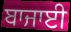
ਬਾਜਾਈ